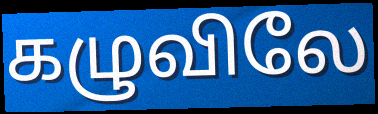
கழுவிலே